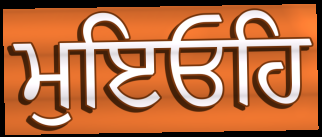
ਮੁਇਓਹਿ